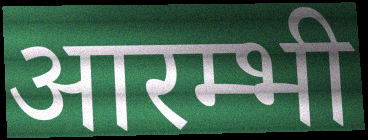
आरम्भी